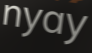
nyay